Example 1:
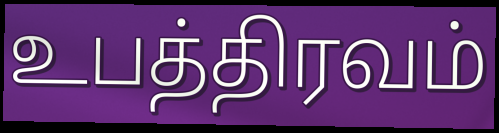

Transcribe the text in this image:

உபத்திரவம்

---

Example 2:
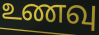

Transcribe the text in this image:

உணவு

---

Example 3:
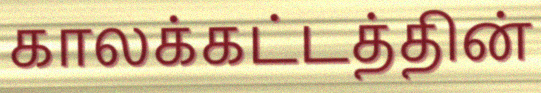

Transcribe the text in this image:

காலக்கட்டத்தின்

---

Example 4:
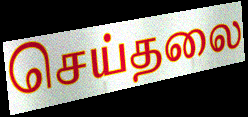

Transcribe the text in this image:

செய்தலை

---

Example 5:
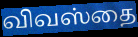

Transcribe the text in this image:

விவஸ்தை